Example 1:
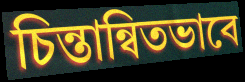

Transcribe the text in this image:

চিন্তান্বিতভাবে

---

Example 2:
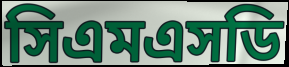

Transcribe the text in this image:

সিএমএসডি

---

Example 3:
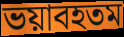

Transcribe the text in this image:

ভয়াবহতম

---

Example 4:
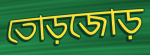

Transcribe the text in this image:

তোড়জোড়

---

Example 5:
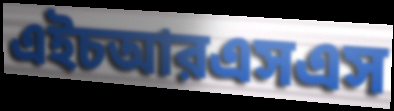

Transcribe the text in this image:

এইচআরএসএস